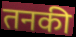
तनकी